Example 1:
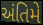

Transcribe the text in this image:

અંતિમે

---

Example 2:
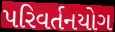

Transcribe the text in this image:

પરિવર્તનયોગ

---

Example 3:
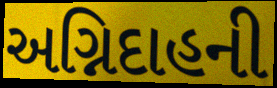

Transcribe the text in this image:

અગ્નિદાહની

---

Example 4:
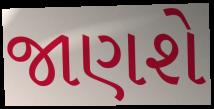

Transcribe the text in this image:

જાણશે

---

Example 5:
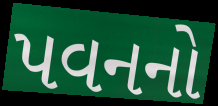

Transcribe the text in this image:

પવનનો